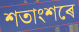
শতাংশৰে